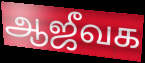
ஆஜீவக